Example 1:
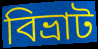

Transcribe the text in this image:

বিভ্রাট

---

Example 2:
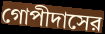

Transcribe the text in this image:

গোপীদাসের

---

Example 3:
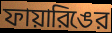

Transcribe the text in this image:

ফায়ারিঙের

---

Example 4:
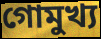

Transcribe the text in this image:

গোমুখ্য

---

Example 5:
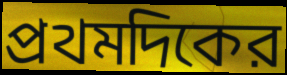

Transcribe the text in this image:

প্রথমদিকের